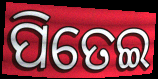
ପିତେଇ